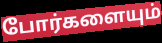
போர்களையும்